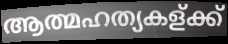
ആത്മഹത്യകള്ക്ക്